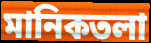
মানিকতলা